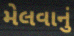
મેલવાનું